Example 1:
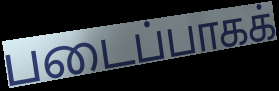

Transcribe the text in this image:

படைப்பாகக்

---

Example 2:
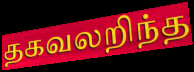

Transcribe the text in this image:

தகவலறிந்த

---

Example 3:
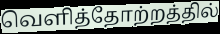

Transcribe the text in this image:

வெளித்தோற்றத்தில்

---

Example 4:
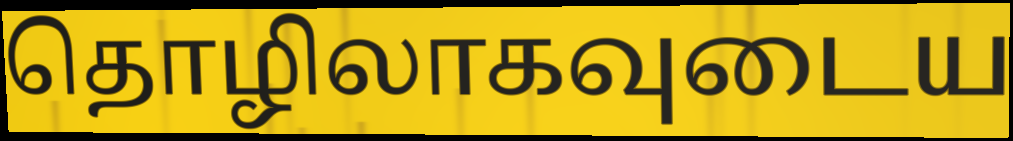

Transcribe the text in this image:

தொழிலாகவுடைய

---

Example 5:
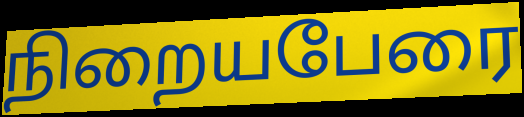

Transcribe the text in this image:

நிறையபேரை